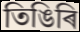
তিঙিৰি